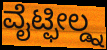
ವೈಟ್ಫೀಲ್ಡ್ನ